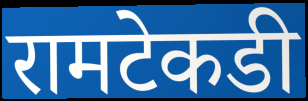
रामटेकडी